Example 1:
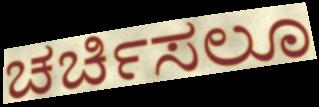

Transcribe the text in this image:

ಚರ್ಚಿಸಲೂ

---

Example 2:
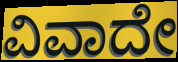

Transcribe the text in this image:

ವಿವಾದೇ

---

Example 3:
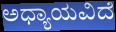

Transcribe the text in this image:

ಅಧ್ಯಾಯವಿದೆ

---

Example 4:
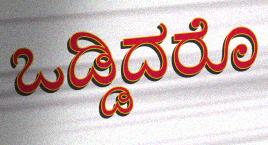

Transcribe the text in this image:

ಒಡ್ಡಿದರೊ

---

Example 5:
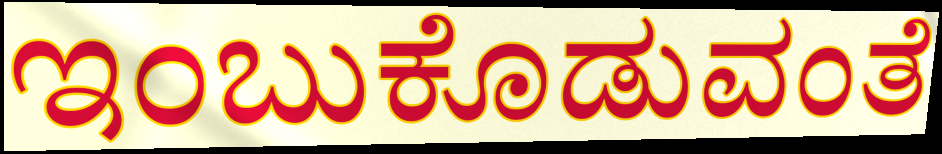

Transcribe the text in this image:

ಇಂಬುಕೊಡುವಂತೆ